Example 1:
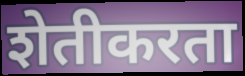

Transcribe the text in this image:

शेतीकरता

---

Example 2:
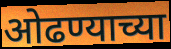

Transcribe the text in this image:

ओढण्याच्या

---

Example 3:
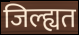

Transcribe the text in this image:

जिल्ह्यत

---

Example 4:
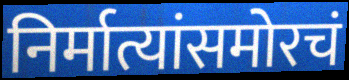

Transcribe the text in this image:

निर्मात्यांसमोरचं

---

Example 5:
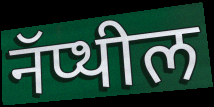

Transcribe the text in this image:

नॅप्थील